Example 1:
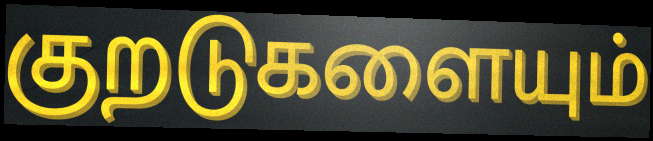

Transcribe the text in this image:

குறடுகளையும்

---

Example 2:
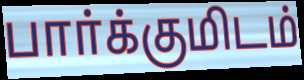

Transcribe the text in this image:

பார்க்குமிடம்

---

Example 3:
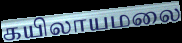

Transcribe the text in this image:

கயிலாயமலை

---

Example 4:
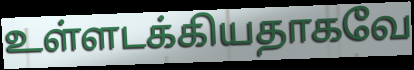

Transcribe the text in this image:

உள்ளடக்கியதாகவே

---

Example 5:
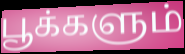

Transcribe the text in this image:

பூக்களும்